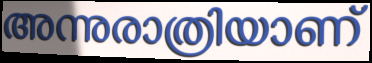
അന്നുരാത്രിയാണ്